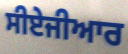
ਸੀਏਜੀਆਰ